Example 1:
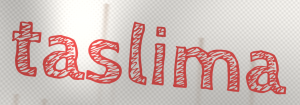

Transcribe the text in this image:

taslima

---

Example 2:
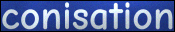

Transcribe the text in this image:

conisation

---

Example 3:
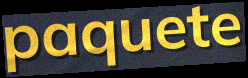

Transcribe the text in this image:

paquete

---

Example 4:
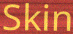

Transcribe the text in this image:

Skin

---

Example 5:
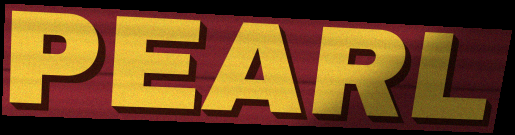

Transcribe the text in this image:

PEARL